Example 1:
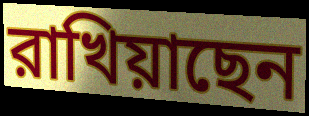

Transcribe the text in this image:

রাখিয়াছেন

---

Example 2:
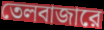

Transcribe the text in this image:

তেলবাজারে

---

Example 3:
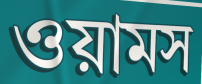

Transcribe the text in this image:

ওয়ামস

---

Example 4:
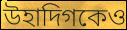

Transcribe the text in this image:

উহাদিগকেও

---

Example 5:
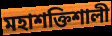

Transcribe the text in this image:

মহাশক্তিশালী